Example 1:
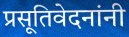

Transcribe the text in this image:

प्रसूतिवेदनांनी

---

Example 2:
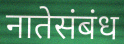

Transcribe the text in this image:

नातेसंबंध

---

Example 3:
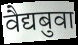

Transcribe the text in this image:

वैद्यबुवा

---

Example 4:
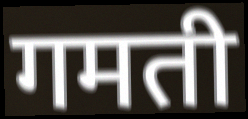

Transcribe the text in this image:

गमती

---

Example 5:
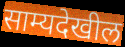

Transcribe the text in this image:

साम्यदेखील